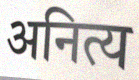
अनित्य